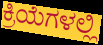
ಕ್ರಿಯೆಗಳಲ್ಲಿ